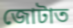
জোটাত